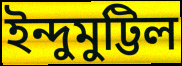
ইন্দুমুট্টিল